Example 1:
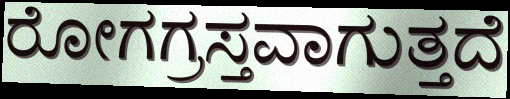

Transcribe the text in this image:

ರೋಗಗ್ರಸ್ತವಾಗುತ್ತದೆ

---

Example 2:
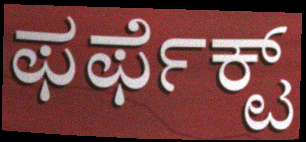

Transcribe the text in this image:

ಫರ್ಫೆಕ್ಟ್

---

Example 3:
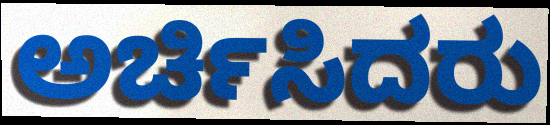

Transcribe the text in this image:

ಅರ್ಚಿಸಿದರು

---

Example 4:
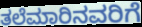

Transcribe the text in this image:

ತಲೆಮಾರಿನವರಿಗೆ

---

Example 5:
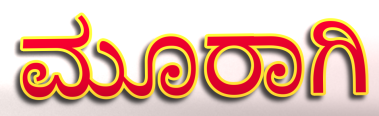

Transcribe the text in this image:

ಮೂರಾಗಿ